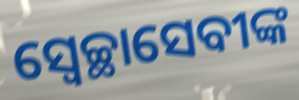
ସ୍ୱେଚ୍ଛାସେବୀଙ୍କ